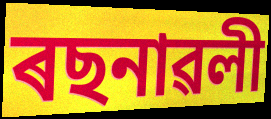
ৰছনাৱলী